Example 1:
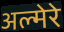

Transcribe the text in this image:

अल्मेरे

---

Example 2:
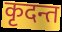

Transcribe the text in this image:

कृदन्त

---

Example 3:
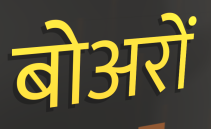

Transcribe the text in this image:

बोअरों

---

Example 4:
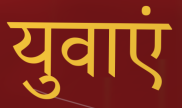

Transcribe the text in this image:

युवाएं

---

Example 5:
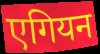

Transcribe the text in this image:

एगियन